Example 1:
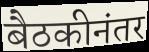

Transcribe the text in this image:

बैठकीनंतर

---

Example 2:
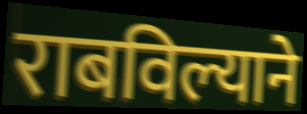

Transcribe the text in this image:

राबविल्याने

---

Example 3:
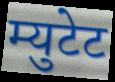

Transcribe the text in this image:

म्युटेट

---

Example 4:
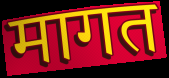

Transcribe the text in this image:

मागत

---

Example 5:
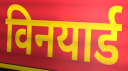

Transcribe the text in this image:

विनयार्ड